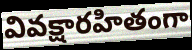
వివక్షారహితంగా